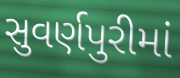
સુવર્ણપુરીમાં